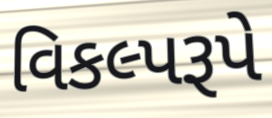
વિકલ્પરૂપે